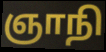
ஞாநி